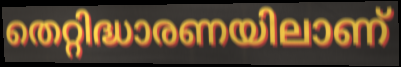
തെറ്റിദ്ധാരണയിലാണ്